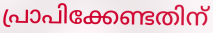
പ്രാപിക്കേണ്ടതിന്